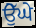
ਉੇੱਘੇ